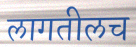
लागतीलच